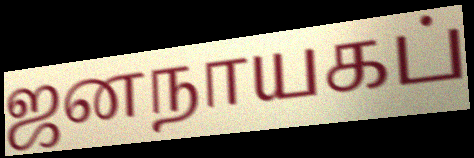
ஜனநாயகப்